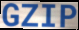
GZIP